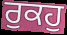
ਰੁਕਹੁ